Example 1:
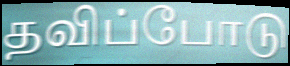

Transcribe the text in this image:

தவிப்போடு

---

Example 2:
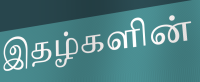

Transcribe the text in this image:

இதழ்களின்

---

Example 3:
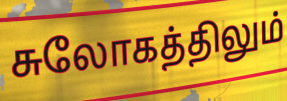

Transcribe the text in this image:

சுலோகத்திலும்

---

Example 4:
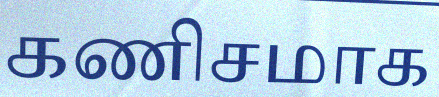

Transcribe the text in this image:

கணிசமாக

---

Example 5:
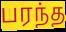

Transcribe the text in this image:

பரந்த